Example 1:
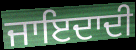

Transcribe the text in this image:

ਜਾਇਦਾਦੀ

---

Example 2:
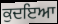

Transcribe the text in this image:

ਕੁਦਇਆ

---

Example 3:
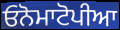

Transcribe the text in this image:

ਓਨੋਮਾਟੋਪੀਆ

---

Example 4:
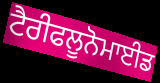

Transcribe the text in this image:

ਟੈਰੀਫਲੂਨੋਮਾਈਡ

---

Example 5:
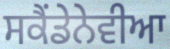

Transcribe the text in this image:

ਸਕੈਂਡੇਨੇਵੀਆ